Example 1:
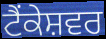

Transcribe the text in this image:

ਟੈਂਕੇਸ਼ਵਰ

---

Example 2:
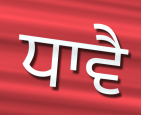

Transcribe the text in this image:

ਧਾਵੈ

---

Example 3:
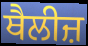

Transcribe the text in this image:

ਥੈਲੀਜ਼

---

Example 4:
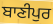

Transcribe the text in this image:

ਬਾਣੀਪੁਰ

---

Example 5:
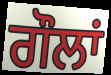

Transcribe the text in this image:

ਗੌਲਾਂ